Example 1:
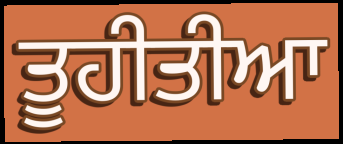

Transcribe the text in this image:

ਤੂਹੀਤੀਆ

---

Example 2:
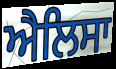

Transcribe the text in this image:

ਐਲਿਸਾ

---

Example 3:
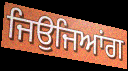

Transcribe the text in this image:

ਜਿਉਜਿਆਂਗ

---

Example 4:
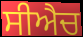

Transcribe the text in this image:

ਸੀਐਚ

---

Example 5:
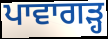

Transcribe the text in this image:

ਪਾਵਾਗੜ੍ਹ